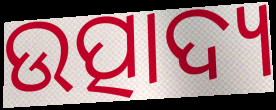
ଉତ୍ପାଦ୍ୟ